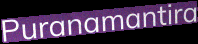
Puranamantira